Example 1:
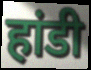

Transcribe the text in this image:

हांडी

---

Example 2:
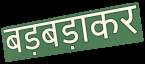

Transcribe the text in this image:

बड़बड़ाकर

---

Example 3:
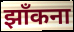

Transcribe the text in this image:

झाँकना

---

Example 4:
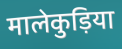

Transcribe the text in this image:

मालेकुड़िया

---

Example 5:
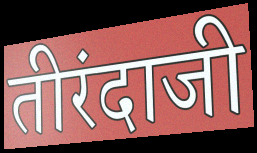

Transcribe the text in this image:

तीरंदाजी